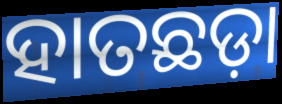
ହାତଛଡ଼ା